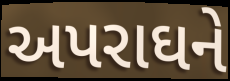
અપરાઘને